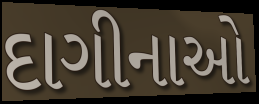
દાગીનાઓ